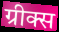
ग्रीक्स